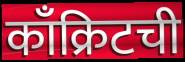
काँक्रिटची